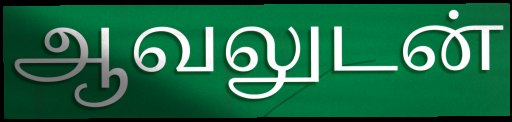
ஆவலுடன்